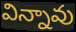
విన్నావు